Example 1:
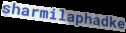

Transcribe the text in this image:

sharmilaphadke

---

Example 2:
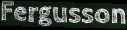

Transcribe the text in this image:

Fergusson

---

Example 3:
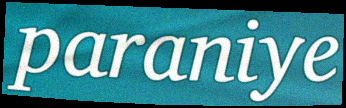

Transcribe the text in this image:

paraniye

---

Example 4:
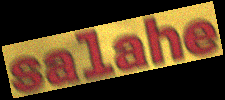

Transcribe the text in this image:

salahe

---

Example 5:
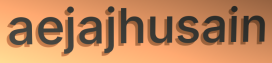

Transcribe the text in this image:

aejajhusain